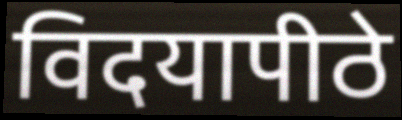
विदयापीठे